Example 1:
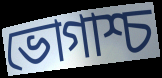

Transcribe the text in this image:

ভোগাশ্চ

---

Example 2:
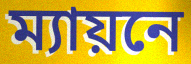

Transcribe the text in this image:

ম্যায়নে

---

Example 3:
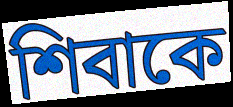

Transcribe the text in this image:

শিবাকে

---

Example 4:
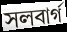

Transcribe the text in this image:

সলবার্গ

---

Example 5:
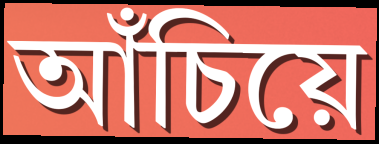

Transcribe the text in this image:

আঁচিয়ে